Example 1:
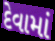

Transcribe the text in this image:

દેવામાં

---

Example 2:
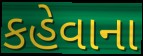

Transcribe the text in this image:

કહેવાના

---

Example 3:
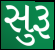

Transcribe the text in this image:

સુરૂ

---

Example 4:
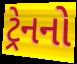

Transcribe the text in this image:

ટ્રેનનો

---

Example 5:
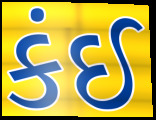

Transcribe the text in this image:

કંઈ